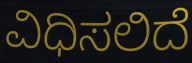
ವಿಧಿಸಲಿದೆ